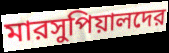
মারসুপিয়ালদের